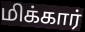
மிக்கார்